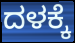
ದಳಕ್ಕೆ